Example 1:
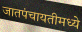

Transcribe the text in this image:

जातपंचायतीमध्ये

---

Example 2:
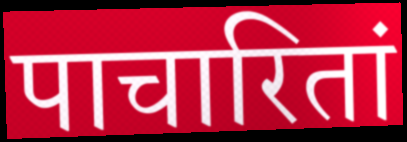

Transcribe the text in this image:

पाचारितां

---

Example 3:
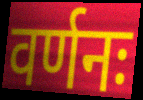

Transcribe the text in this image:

वर्णनः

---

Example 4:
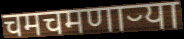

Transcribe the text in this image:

चमचमणाऱ्या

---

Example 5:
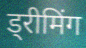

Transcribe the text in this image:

ड्रीमिंग